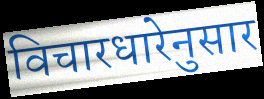
विचारधारेनुसार